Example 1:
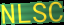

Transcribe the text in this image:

NLSC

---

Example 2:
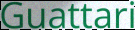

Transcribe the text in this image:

Guattari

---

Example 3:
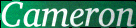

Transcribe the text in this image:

Cameron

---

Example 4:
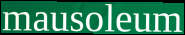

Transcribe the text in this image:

mausoleum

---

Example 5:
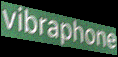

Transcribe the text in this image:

vibraphone